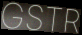
GSTR